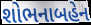
શોભનાબહેન